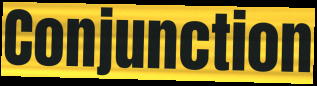
Conjunction